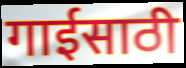
गाईसाठी